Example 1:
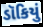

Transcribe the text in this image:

ડૉકિયું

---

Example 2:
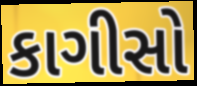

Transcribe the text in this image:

કાગીસો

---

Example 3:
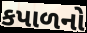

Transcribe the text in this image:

કપાળનો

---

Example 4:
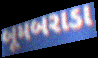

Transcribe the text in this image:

બૂમબરાડા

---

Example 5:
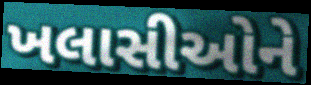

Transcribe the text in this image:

ખલાસીઓને